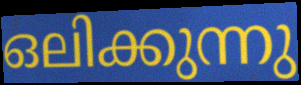
ഒലിക്കുന്നു